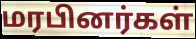
மரபினர்கள்